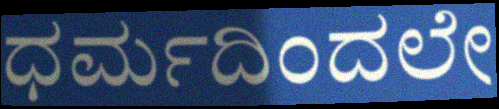
ಧರ್ಮದಿಂದಲೇ